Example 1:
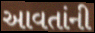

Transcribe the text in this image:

આવતાંની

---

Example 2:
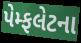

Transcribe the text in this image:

પેમ્ફલેટના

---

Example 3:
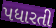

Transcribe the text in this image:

પધારતી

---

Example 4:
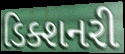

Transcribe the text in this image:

ડિક્શનરી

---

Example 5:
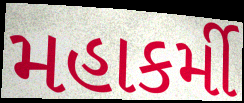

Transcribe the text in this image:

મહાકર્મી